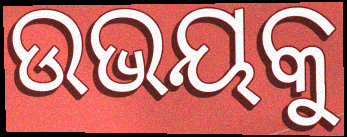
ଉଭୟକୁ